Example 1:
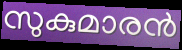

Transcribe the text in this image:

സുകുമാരൻ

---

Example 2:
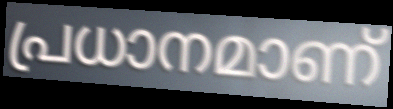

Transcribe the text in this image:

പ്രധാനമാണ്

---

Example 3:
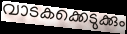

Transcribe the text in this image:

വാടകക്കെടുക്കും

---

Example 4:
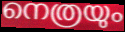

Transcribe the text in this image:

നെത്രയും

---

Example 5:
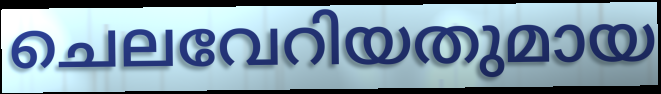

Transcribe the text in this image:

ചെലവേറിയതുമായ